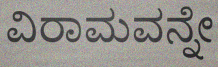
ವಿರಾಮವನ್ನೇ